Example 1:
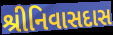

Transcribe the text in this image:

શ્રીનિવાસદાસ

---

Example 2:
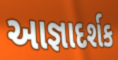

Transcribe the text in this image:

આજ્ઞાદર્શક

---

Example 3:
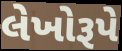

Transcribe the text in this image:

લેખોરૂપે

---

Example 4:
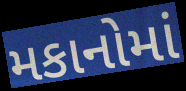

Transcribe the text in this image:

મકાનોમાં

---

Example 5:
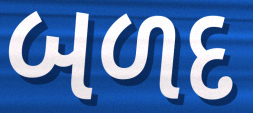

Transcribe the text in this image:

બળદ